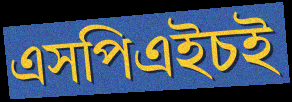
এসপিএইচই